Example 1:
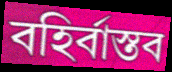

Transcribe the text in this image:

বহির্বাস্তব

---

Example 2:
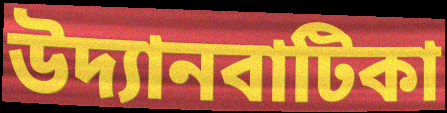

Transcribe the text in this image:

উদ্যানবাটিকা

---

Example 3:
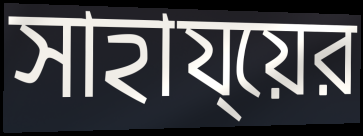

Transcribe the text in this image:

সাহায্য়ের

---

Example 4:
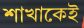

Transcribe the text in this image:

শাখাকেই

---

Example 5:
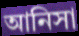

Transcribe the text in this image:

আনিসা